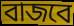
বাজবে